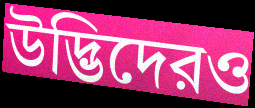
উদ্ভিদেরও